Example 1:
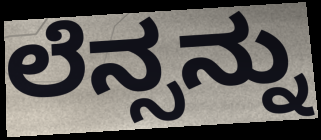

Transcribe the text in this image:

ಲೆನ್ಸನ್ನು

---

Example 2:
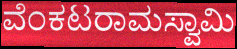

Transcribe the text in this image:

ವೆಂಕಟರಾಮಸ್ವಾಮಿ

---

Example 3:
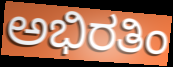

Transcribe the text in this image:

ಅಭಿರತಿಂ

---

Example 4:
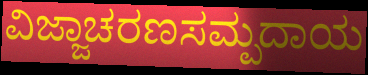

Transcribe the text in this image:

ವಿಜ್ಜಾಚರಣಸಮ್ಪದಾಯ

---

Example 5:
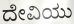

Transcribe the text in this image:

ದೇವಿಯು